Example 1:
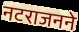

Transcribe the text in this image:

नटराजनने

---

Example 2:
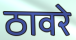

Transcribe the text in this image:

ठावरे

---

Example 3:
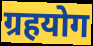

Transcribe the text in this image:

ग्रहयोग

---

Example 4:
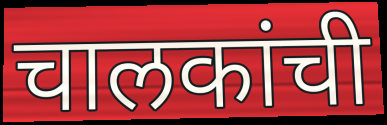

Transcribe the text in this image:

चालकांची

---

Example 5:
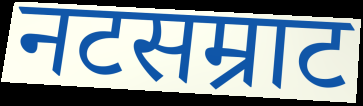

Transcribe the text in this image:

नटसम्राट